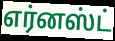
எர்னஸ்ட்